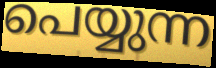
പെയ്യുന്ന